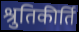
श्रुतिकीर्ति